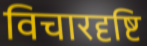
विचारदृष्टि